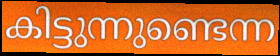
കിട്ടുന്നുണ്ടെന്ന